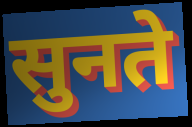
सुनते